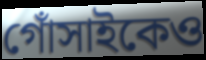
গোঁসাইকেও